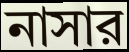
নাসার